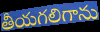
తీయగలిగాను